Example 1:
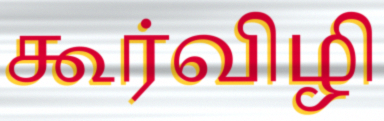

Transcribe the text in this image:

கூர்விழி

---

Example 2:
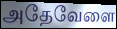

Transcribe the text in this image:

அதேவேளை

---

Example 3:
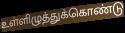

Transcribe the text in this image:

உள்ளிழுத்துக்கொண்டு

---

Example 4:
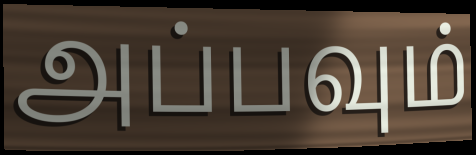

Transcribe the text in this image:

அப்பவும்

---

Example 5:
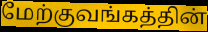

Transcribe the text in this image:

மேற்குவங்கத்தின்